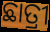
ଛାତ୍ରୀ